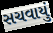
સચવાયું